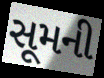
સૂમની